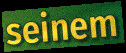
seinem